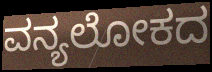
ವನ್ಯಲೋಕದ